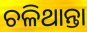
ଚଳିଥାନ୍ତା